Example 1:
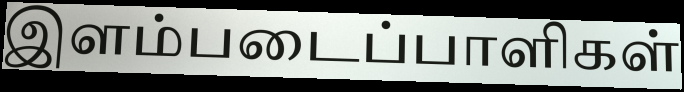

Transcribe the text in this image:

இளம்படைப்பாளிகள்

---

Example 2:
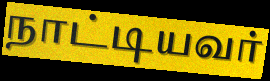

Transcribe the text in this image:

நாட்டியவர்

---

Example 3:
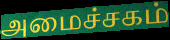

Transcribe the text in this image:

அமைச்சகம்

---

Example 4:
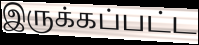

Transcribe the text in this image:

இருக்கப்பட்ட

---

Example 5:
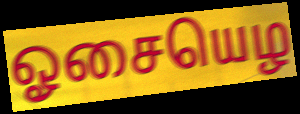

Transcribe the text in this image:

ஓசையெழ